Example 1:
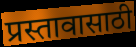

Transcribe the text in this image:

प्रस्तावासाठी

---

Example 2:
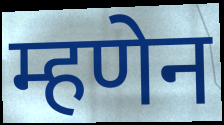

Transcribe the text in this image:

म्हणेन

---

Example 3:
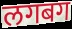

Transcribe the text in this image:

लगबग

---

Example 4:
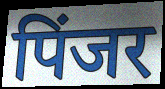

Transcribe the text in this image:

पिंजर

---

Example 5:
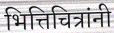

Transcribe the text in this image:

भित्तिचित्रांनी